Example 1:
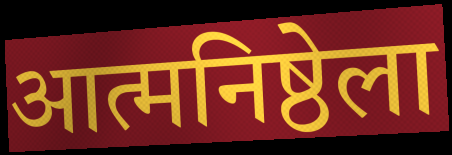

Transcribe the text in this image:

आत्मनिष्ठेला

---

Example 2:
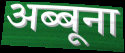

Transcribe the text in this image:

अब्बूना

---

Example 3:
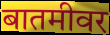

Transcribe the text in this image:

बातमीवर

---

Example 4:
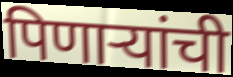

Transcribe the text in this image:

पिणाऱ्यांची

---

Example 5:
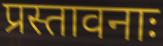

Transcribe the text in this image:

प्रस्तावनाः